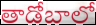
తాడోబాలో